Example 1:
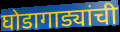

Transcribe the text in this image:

घोडागाड्यांची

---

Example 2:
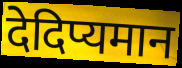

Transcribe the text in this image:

देदिप्यमान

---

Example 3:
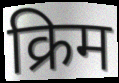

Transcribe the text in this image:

क्रिम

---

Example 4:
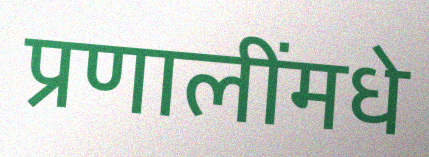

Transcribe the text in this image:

प्रणालींमधे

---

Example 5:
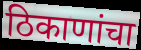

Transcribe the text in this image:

ठिकाणांचा